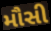
મૌસી